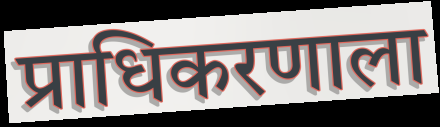
प्राधिकरणाला